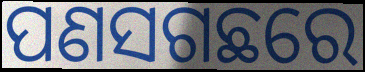
ପଣସଗଛରେ